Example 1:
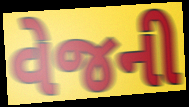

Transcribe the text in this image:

વેજની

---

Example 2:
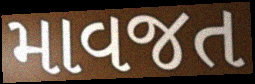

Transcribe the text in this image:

માવજત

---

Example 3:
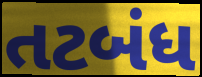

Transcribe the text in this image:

તટબંધ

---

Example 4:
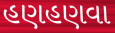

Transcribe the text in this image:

હણહણવા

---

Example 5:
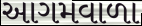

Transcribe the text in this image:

આગમવાળા